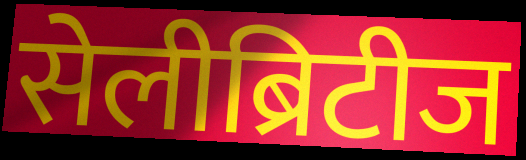
सेलीब्रिटीज